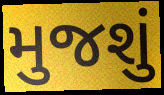
મુજશું